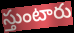
స్తుంటారు